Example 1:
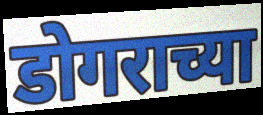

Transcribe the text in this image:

डोगराच्या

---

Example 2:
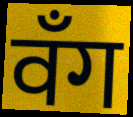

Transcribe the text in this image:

वँग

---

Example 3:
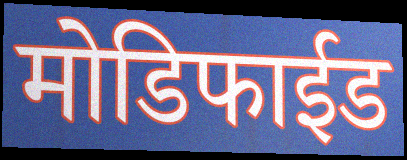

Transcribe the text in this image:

मोडिफाईड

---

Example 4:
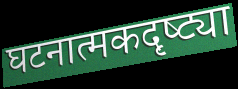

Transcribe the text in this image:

घटनात्मकदृष्ट्या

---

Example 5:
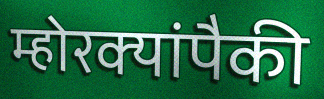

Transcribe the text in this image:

म्होरक्यांपैकी